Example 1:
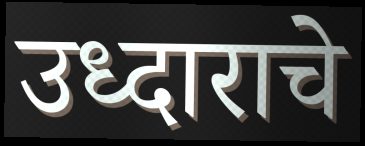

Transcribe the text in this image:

उध्दाराचे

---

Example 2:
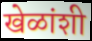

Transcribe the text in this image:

खेळांशी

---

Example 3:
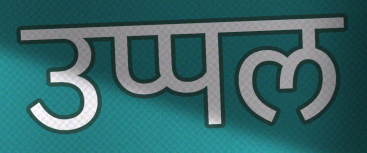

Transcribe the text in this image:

उप्पल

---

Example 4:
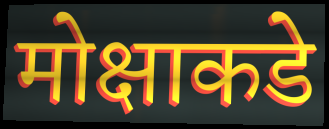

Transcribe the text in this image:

मोक्षाकडे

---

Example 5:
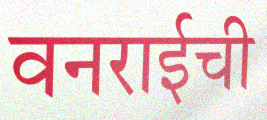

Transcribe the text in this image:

वनराईची